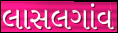
લાસલગાંવ